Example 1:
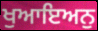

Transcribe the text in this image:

ਖੁਆਇਅਨੁ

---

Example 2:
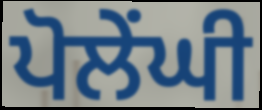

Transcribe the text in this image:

ਪੋਲੇਂਘੀ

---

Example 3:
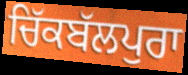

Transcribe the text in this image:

ਚਿੱਕਬੱਲਪੁਰਾ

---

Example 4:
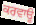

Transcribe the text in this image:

ਕਰਵਾਊ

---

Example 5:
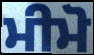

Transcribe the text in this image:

ਮੀਮੋ